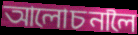
আলোচনালৈ